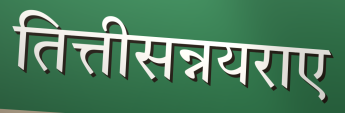
तित्तीसन्नयराए